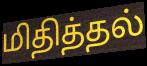
மிதித்தல்